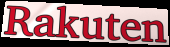
Rakuten